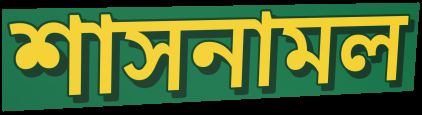
শাসনামল